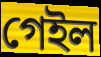
গেইল